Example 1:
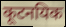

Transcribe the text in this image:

कूटनयिक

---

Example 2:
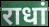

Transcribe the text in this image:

राधां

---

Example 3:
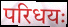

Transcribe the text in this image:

परिधयः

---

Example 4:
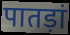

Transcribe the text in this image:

पातड़ां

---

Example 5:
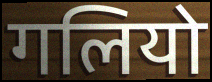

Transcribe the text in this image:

गलियो